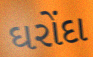
ઘરોંદા